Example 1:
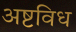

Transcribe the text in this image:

अष्टविध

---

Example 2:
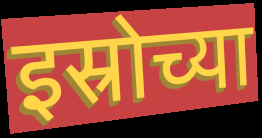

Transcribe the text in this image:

इस्रोच्या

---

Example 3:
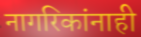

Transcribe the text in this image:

नागरिकांनाही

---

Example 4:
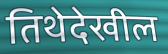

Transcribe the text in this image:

तिथेदेखील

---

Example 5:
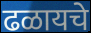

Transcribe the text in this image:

ढळायचे